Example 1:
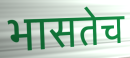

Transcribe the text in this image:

भासतेच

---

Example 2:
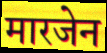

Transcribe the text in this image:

मारजेन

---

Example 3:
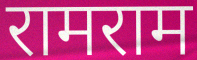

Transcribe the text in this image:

रामराम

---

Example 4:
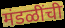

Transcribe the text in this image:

मंडळींची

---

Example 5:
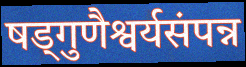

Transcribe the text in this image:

षड्‌गुणैश्वर्यसंपन्न